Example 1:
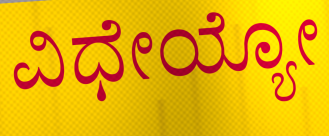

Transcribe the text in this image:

ವಿಧೇಯ್ಯೋ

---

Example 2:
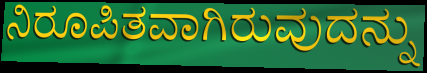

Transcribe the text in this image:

ನಿರೂಪಿತವಾಗಿರುವುದನ್ನು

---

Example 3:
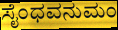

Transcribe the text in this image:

ಸೈಂಧವನುಮಂ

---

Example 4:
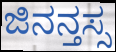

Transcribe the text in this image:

ಜಿನನ್ತಸ್ಸ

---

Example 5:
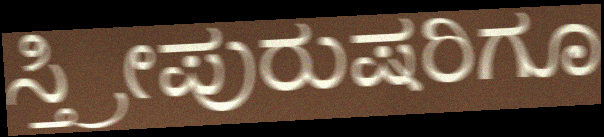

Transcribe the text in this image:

ಸ್ತ್ರೀಪುರುಷರಿಗೂ